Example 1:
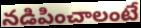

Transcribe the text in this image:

నడిపించాలంటే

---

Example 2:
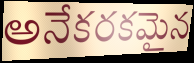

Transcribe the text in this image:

అనేకరకమైన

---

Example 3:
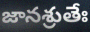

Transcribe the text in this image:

జానశ్రుతేః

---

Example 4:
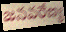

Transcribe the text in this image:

జనవరేణ్య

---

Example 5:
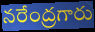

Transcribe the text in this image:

నరేంద్రగారు